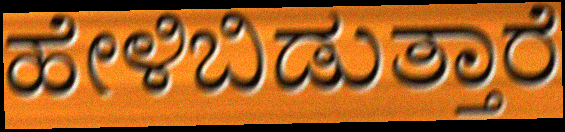
ಹೇಳಿಬಿಡುತ್ತಾರೆ